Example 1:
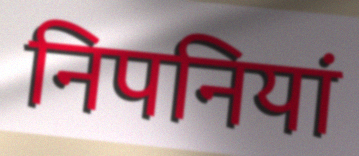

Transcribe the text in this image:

निपनियां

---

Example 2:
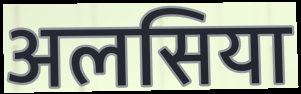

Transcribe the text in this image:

अलसिया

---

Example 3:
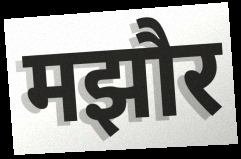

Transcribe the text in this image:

मझौर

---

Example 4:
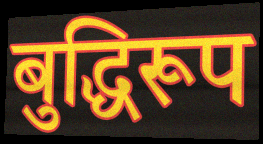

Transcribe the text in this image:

बुद्धिरूप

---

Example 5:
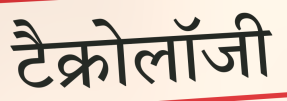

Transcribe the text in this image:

टैक्रोलॉजी